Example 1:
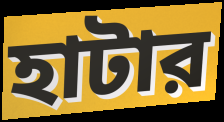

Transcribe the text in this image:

হাটার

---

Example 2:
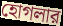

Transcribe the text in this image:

হোগলার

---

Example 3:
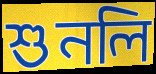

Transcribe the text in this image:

শুনলি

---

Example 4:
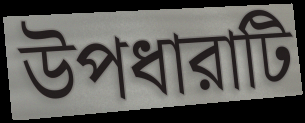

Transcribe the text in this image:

উপধারাটি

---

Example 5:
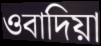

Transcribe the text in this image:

ওবাদিয়া